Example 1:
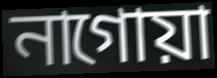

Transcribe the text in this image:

নাগোয়া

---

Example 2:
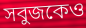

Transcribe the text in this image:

সবুজকেও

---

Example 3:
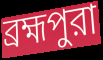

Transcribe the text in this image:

ব্রহ্মপুরা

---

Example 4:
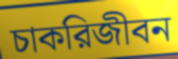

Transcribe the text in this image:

চাকরিজীবন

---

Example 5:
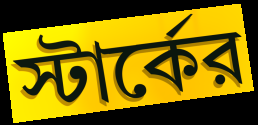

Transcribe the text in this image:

স্টার্কের